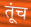
तूंच